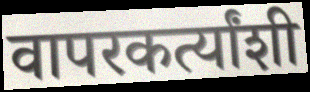
वापरकर्त्यांशी